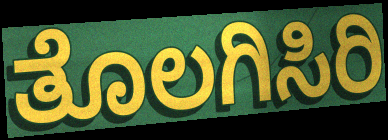
ತೊಲಗಿಸಿರಿ